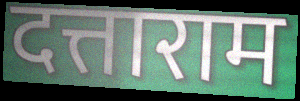
दत्ताराम